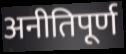
अनीतिपूर्ण